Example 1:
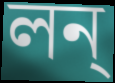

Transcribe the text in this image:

লন্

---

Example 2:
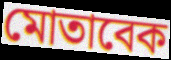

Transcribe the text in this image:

মোতাবেক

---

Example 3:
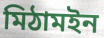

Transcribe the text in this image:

মিঠামইন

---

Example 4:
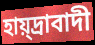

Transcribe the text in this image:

হায়্দ্রাবাদী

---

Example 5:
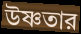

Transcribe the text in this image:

উষ্ণতার